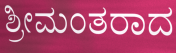
ಶ್ರೀಮಂತರಾದ